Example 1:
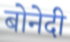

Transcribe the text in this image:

बोनेदी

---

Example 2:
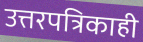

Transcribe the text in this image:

उत्तरपत्रिकाही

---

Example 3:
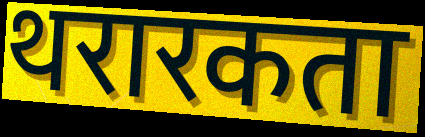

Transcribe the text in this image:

थरारकता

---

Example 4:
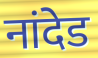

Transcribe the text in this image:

नांदेड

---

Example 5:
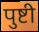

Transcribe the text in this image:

पुष्टी